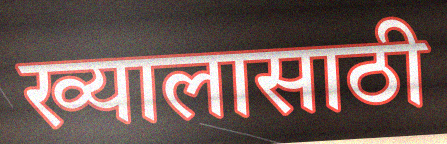
ख्यालासाठी